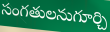
సంగతులనుగూర్చి